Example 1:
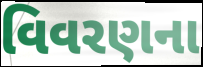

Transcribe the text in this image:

વિવરણના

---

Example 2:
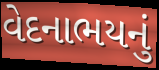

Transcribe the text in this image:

વેદનાભયનું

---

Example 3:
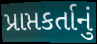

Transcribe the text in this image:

પ્રાપ્તકર્તાનું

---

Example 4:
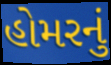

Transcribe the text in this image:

હોમરનું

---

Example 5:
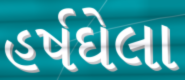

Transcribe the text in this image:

હર્ષઘેલા